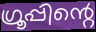
ഗ്രൂപ്പിന്റെ